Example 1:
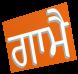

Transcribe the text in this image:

ਗਾਮੈ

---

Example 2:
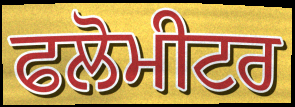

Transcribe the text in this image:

ਫਲੋਮੀਟਰ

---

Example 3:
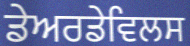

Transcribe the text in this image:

ਡੇਅਰਡੇਵਿਲਸ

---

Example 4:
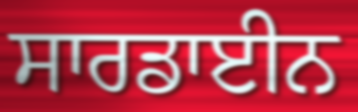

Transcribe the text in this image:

ਸਾਰਡਾਈਨ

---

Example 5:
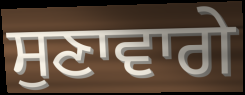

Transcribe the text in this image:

ਸੁਣਾਵਾਗੇ